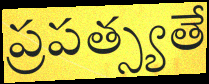
ప్రపత్స్యతే